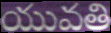
యువతి